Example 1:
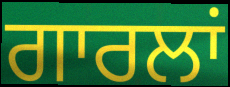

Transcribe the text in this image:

ਗਾਰਲਾਂ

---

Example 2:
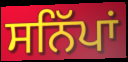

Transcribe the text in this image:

ਸਨਿੱਪਾਂ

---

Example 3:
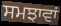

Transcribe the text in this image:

ਸਮਝਾਵਾਂ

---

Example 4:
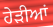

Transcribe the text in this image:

ਹੇੜੀਆਂ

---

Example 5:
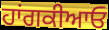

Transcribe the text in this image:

ਹਾਂਗਕੀਆਓ